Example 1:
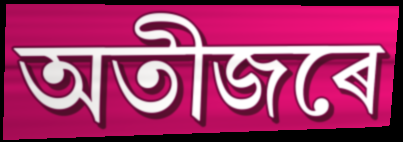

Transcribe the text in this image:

অতীজৰে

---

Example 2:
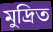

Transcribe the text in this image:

মুদ্ৰিত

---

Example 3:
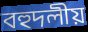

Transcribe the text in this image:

বহুদলীয়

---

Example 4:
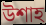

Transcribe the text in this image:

উশাহ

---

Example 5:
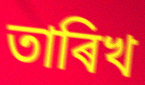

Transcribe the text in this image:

তাৰিখ